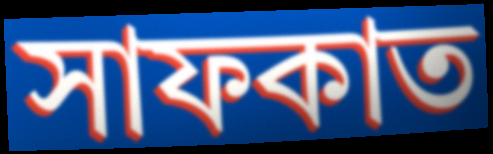
সাফকাত